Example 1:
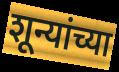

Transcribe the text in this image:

शून्यांच्या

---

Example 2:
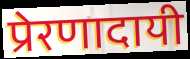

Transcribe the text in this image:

प्रेरणादायी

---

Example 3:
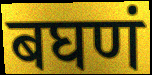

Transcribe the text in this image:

बघणं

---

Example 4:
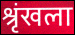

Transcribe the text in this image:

श्रृंखला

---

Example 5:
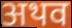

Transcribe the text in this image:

अथव